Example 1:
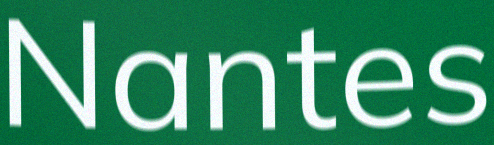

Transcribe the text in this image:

Nantes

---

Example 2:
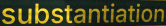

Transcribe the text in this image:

substantiation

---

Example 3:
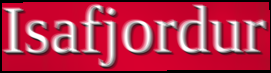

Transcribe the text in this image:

Isafjordur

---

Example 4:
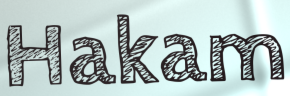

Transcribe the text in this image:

Hakam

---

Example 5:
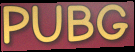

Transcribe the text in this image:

PUBG